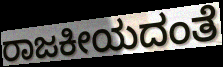
ರಾಜಕೀಯದಂತೆ